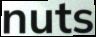
nuts